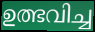
ഉത്ഭവിച്ച